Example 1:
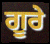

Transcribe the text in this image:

ਗੂਰੇ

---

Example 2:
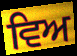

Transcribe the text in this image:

ਵਿਅ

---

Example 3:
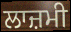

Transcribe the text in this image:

ਲਾਜ਼ਮੀ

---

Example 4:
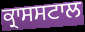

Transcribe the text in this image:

ਕ੍ਰਾਸਸਟਾਲ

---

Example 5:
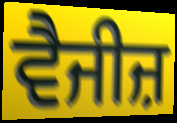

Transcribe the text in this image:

ਵੈਜੀਜ਼